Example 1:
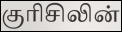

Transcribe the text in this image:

குரிசிலின்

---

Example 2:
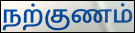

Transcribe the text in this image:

நற்குணம்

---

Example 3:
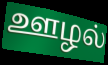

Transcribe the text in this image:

ஊழல்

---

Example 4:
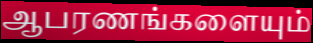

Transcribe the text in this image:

ஆபரணங்களையும்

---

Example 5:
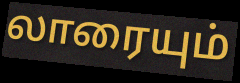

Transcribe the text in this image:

லாரையும்